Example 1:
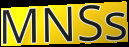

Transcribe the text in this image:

MNSs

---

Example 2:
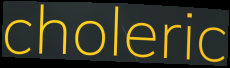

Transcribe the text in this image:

choleric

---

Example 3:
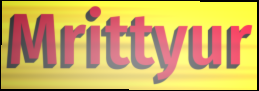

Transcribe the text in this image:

Mrittyur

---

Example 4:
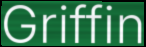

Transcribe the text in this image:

Griffin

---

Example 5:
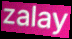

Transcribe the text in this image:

zalay